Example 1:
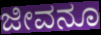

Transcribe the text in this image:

ಜೀವನೂ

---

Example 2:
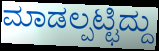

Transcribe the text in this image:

ಮಾಡಲ್ಪಟ್ಟಿದ್ದು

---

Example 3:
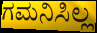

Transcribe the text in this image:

ಗಮನಿಸಿಲ್ಲ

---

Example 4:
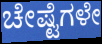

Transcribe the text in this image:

ಚೇಷ್ಟೆಗಳೇ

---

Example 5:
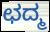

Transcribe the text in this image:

ಛದ್ಮ